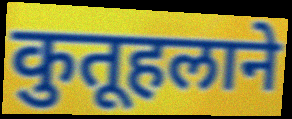
कुतूहलाने